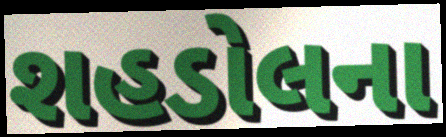
શહડોલના